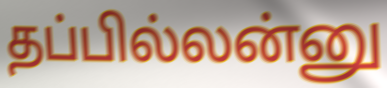
தப்பில்லன்னு